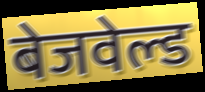
बेजवेल्ड